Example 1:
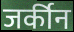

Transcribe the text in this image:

जर्कीन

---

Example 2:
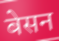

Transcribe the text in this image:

बेसन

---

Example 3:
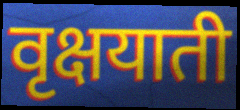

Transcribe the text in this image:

वृक्षयाती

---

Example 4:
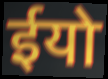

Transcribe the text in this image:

ईयो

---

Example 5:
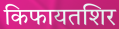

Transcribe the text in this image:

किफायतशिर